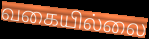
வகையில்லை